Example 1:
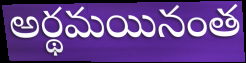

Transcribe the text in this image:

అర్థమయినంత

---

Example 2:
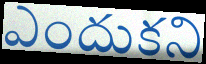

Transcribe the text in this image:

ఎందుకని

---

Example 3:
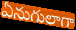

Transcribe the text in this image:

ఏనుగులాగా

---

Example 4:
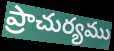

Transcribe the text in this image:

ప్రాచుర్యము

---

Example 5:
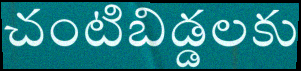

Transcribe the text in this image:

చంటిబిడ్డలకు